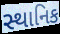
સ્થાનિક